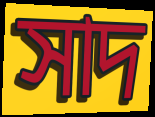
সাদ